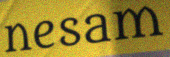
nesam